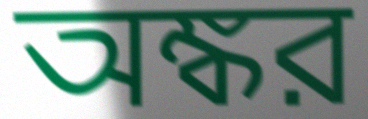
অঙ্কর